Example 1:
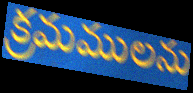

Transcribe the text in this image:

క్రమములను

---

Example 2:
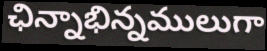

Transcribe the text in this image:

ఛిన్నాభిన్నములుగా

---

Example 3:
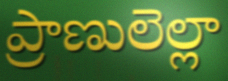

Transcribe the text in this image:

ప్రాణులెల్లా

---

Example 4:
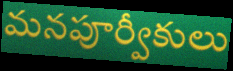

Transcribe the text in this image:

మనపూర్వీకులు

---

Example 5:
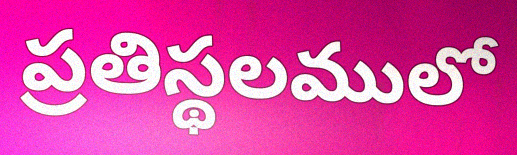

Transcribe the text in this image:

ప్రతిస్థలములో